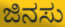
ಜಿನಸು